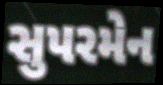
સુપરમેન